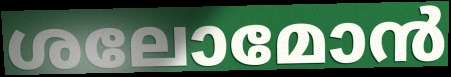
ശലോമോൻ